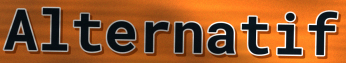
Alternatif